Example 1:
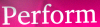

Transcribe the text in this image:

Perform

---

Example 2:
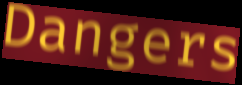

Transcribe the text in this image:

Dangers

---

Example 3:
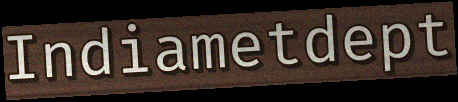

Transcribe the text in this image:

Indiametdept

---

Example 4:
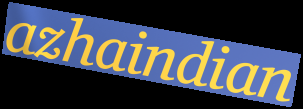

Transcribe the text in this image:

azhaindian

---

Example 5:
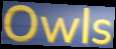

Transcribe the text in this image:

Owls